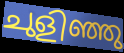
ചുളിഞ്ഞു